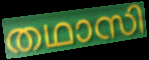
തഥാസി